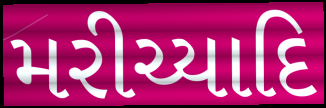
મરીચ્યાદિ